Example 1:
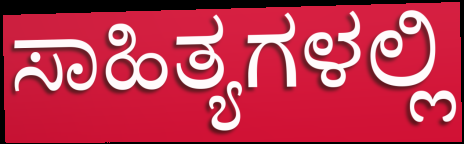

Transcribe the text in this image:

ಸಾಹಿತ್ಯಗಳಲ್ಲಿ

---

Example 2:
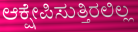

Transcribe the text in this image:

ಆಕ್ಷೇಪಿಸುತ್ತಿರಲಿಲ್ಲ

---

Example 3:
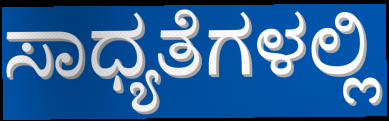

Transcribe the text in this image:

ಸಾಧ್ಯತೆಗಳಲ್ಲಿ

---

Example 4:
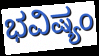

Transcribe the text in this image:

ಭವಿಷ್ಯಂ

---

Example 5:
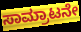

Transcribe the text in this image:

ಸಾಮ್ರಾಟನೇ